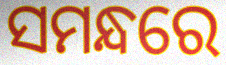
ସମନ୍ଧରେ